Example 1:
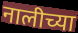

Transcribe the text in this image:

नालीच्या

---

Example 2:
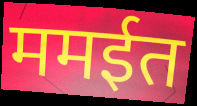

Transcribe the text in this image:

ममईत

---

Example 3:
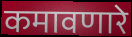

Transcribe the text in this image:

कमावणारे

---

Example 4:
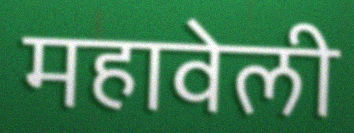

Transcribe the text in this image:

महावेली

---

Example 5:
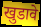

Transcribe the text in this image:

खुडावे